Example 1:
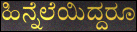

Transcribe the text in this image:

ಹಿನ್ನೆಲೆಯಿದ್ದರೂ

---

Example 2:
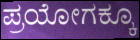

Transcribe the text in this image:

ಪ್ರಯೋಗಕ್ಕೂ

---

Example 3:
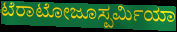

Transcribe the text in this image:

ಟೆರಾಟೋಜೂಸ್ಪರ್ಮಿಯಾ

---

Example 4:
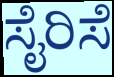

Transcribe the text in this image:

ಸೈರಿಸೆ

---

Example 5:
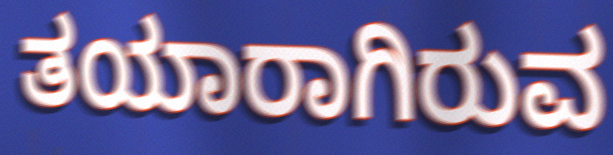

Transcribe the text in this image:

ತಯಾರಾಗಿರುವ